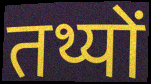
तथ्यों